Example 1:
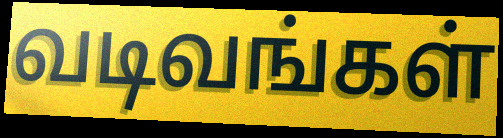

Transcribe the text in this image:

வடிவங்கள்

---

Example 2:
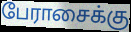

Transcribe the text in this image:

பேராசைக்கு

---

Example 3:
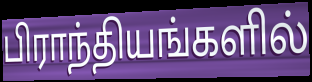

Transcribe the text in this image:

பிராந்தியங்களில்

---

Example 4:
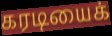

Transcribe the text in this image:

கரடியைக்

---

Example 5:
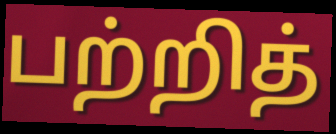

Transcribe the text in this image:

பற்றித்